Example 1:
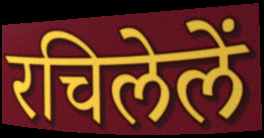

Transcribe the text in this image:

रचिलेलें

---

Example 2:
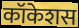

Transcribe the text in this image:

कॉकेशस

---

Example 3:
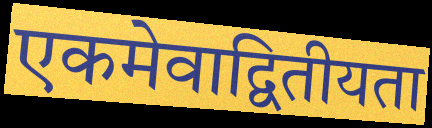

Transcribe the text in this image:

एकमेवाद्वितीयता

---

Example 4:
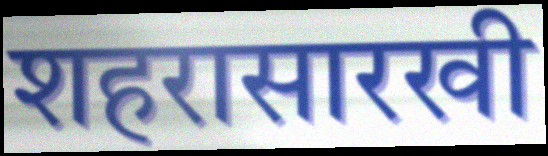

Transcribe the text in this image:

शहरासारखी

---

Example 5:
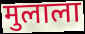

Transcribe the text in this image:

मुलाला